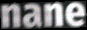
nane